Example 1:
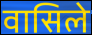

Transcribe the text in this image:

वासिले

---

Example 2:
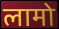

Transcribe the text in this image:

लामो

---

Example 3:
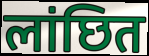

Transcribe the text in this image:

लांछित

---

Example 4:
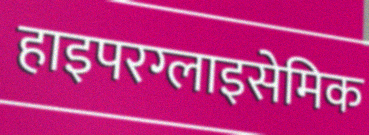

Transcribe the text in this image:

हाइपरग्लाइसेमिक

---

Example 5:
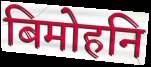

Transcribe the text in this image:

बिमोहनि